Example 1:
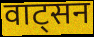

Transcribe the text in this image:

वाट्सन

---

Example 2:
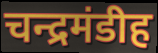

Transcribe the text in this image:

चन्द्रमंडीह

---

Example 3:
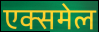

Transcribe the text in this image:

एक्समेल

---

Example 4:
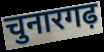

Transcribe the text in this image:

चुनारगढ़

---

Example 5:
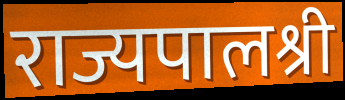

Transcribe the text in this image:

राज्यपालश्री